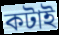
কটাই